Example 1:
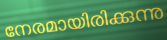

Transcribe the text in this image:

നേരമായിരിക്കുന്നു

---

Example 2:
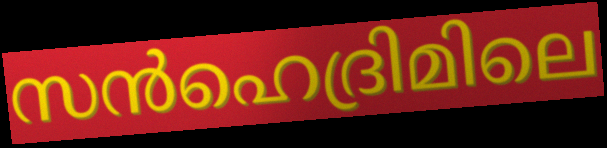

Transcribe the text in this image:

സൻഹെദ്രിമിലെ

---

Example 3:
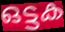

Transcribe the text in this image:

ഒട്ടക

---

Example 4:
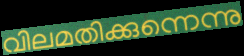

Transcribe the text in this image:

വിലമതിക്കുന്നെന്നു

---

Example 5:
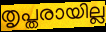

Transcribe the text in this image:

തൃപ്തരായില്ല